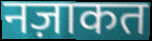
नज़ाकत